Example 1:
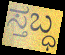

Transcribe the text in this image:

ಸ್ತಬ್ಧ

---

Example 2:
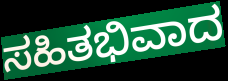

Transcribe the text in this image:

ಸಹಿತಭಿವಾದ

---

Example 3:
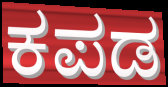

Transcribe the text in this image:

ಕಪಡ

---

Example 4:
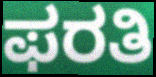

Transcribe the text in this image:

ಫರತಿ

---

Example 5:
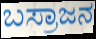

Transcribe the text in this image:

ಬಸ್ರಾಜನ